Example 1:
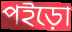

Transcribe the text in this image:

পইড়ো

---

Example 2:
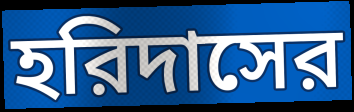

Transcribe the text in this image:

হরিদাসের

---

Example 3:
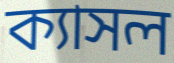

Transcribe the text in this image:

ক্যাসল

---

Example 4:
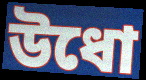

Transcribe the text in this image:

উধো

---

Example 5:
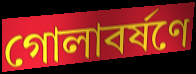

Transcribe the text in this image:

গোলাবর্ষণে